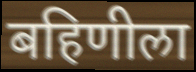
बहिणीला